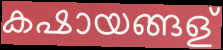
കഷായങ്ങള്